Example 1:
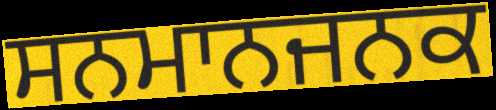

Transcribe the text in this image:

ਸਨਮਾਨਜਨਕ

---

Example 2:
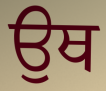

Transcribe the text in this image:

ਉਥ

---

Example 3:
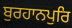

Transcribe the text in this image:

ਬੁਰਹਾਨਪੁਰਿ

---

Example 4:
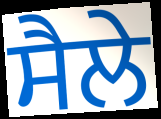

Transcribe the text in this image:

ਸੈਲੇ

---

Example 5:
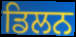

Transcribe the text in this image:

ਡਿਲਨ